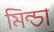
মিন্ডা